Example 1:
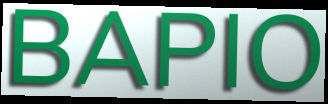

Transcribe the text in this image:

BAPIO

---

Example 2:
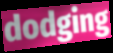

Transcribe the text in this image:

dodging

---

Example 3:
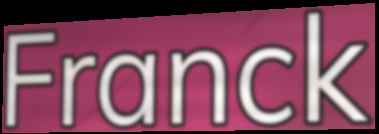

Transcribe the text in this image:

Franck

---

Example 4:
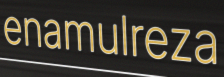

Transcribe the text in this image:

enamulreza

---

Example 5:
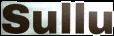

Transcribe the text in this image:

Sullu